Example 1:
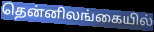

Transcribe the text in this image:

தென்னிலங்கையில்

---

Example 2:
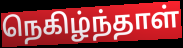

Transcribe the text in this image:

நெகிழ்ந்தாள்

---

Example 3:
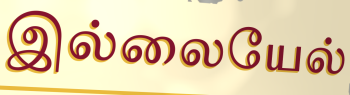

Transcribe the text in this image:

இல்லையேல்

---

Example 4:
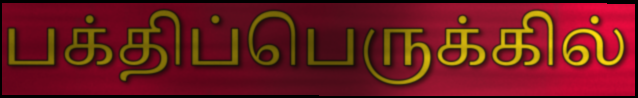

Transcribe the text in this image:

பக்திப்பெருக்கில்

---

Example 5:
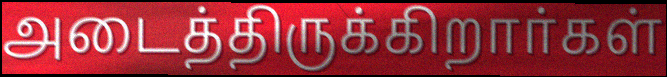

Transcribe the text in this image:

அடைத்திருக்கிறார்கள்